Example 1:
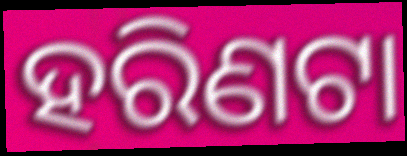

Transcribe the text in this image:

ହରିଣଟା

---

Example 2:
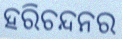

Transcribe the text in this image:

ହରିଚନ୍ଦନର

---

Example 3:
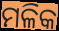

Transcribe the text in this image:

ମଳିକ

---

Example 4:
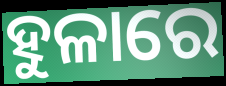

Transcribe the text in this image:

ହୁଳାରେ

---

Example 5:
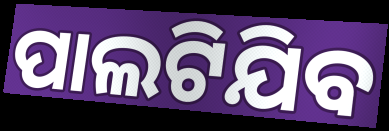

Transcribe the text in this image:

ପାଲଟିଯିବ